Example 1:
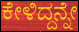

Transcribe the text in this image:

ಕೇಳಿದ್ದನ್ನೇ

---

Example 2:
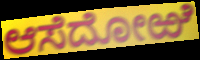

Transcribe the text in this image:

ಆಸೆದೋಱೆ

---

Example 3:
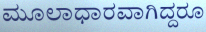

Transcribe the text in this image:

ಮೂಲಾಧಾರವಾಗಿದ್ದರೂ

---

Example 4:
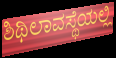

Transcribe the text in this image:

ಶಿಥಿಲಾವಸ್ಥೆಯಲ್ಲಿ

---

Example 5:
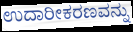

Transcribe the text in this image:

ಉದಾರೀಕರಣವನ್ನು